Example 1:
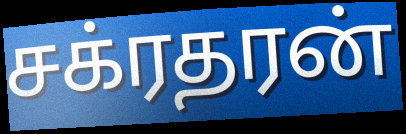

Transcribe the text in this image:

சக்ரதரன்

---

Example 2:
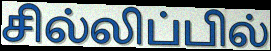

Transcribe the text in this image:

சில்லிப்பில்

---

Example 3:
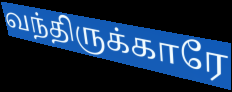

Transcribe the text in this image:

வந்திருக்காரே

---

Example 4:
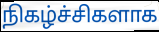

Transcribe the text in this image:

நிகழ்ச்சிகளாக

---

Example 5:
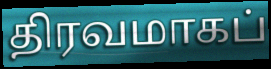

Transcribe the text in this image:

திரவமாகப்